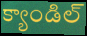
క్యాండిల్